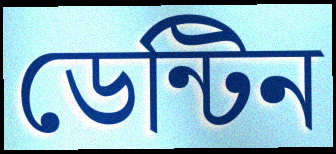
ডেন্টিন